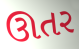
ઊતર